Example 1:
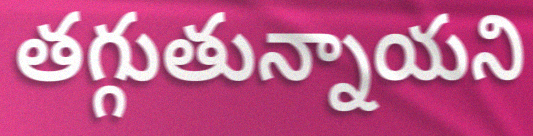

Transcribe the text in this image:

తగ్గుతున్నాయని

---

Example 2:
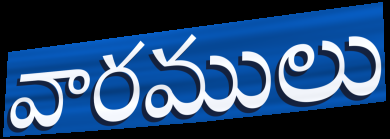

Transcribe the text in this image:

వారములు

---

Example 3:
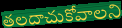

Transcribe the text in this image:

తలదాచుకోవాలని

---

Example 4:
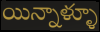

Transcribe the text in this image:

యిన్నాళ్ళూ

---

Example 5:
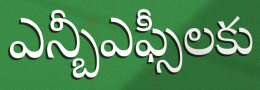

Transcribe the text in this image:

ఎన్బీఎఫ్సీలకు